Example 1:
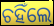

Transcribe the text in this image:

ଚହିଁଲେ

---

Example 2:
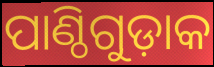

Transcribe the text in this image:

ପାଣ୍ଠିଗୁଡ଼ାକ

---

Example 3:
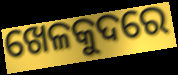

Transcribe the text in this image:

ଖେଳକୁଦରେ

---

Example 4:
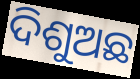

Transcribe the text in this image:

ଦିଶୁଅଛ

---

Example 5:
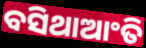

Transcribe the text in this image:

ବସିଥାଆଂତି